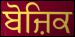
ਬੋਜ਼ਿਕ